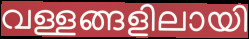
വള്ളങ്ങളിലായി